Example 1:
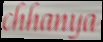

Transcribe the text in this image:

chhanya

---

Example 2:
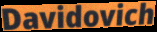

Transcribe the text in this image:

Davidovich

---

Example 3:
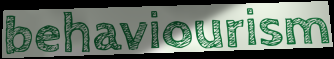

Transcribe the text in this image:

behaviourism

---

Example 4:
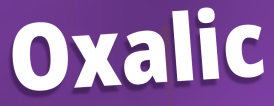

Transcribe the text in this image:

Oxalic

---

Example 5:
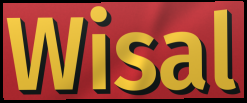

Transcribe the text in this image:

Wisal